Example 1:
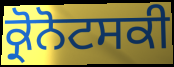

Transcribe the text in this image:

ਕ੍ਰੋਨੋਟਸਕੀ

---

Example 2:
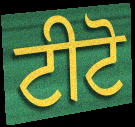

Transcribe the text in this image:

ਟੀਟੋ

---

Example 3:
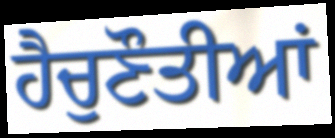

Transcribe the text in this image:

ਹੈਚੁਣੌਤੀਆਂ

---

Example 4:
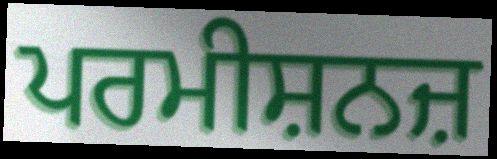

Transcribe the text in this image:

ਪਰਮੀਸ਼ਨਜ਼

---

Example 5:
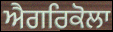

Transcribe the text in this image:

ਐਗਰਿਕੋਲਾ